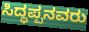
ಸಿದ್ಧಪ್ಪನವರು